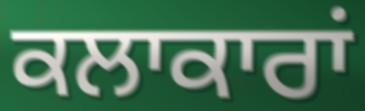
ਕਲਾਕਾਰਾਂ